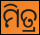
ମିତ୍ର